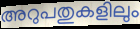
അറുപതുകളിലും